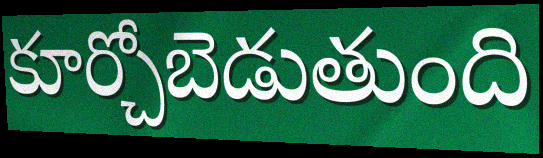
కూర్చోబెడుతుంది